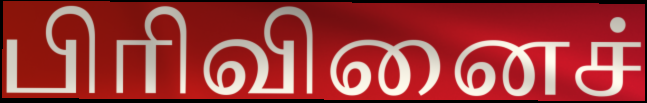
பிரிவினைச்